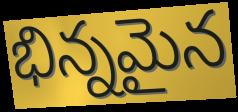
భిన్నమైన